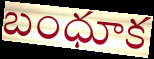
బంధూక